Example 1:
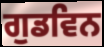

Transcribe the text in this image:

ਗੁਡਵਿਨ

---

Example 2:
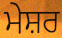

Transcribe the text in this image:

ਮੇਸ਼ਰ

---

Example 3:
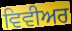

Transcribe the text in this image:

ਵਿਵੀਅਰ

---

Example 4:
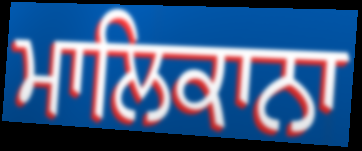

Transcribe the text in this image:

ਮਾਲਿਕਾਨਾ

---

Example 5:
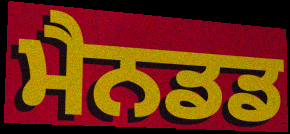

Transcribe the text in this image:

ਮੈਨਡਡ